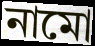
নামো